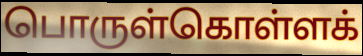
பொருள்கொள்ளக்